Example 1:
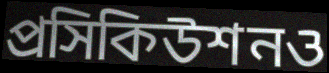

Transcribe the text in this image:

প্রসিকিউশনও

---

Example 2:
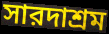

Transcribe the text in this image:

সারদাশ্রম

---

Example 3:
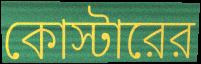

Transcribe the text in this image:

কোস্টারের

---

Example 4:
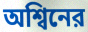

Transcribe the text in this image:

অশ্বিনের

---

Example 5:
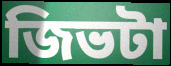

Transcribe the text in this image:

জিভটা